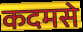
कदमसे